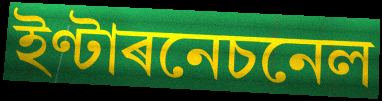
ইণ্টাৰনেচনেল